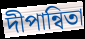
দীপান্বিতা